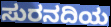
ಸುರನದಿಯ